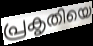
പ്രകൃതിയെ